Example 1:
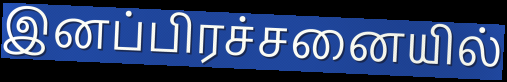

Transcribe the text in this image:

இனப்பிரச்சனையில்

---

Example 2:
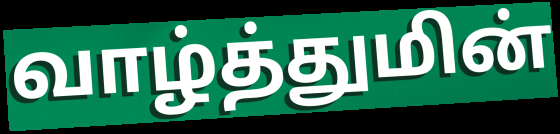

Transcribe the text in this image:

வாழ்த்துமின்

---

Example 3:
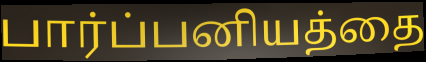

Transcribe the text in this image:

பார்ப்பனியத்தை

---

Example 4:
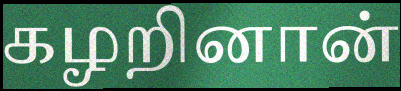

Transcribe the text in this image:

கழறினான்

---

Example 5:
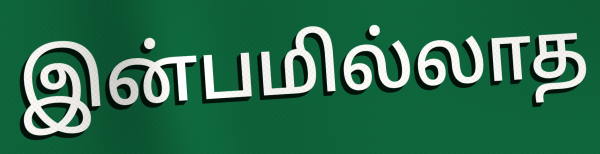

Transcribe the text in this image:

இன்பமில்லாத